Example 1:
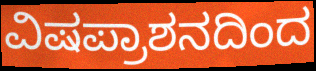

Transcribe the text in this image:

ವಿಷಪ್ರಾಶನದಿಂದ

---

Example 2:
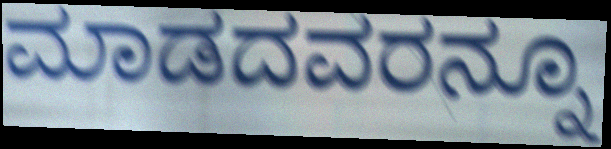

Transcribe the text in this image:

ಮಾಡದವರನ್ನೂ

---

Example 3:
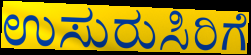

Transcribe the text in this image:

ಉಸುರುಸಿರಿಗೆ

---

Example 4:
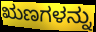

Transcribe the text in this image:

ಋಣಗಳನ್ನು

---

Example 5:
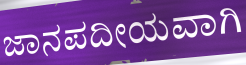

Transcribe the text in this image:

ಜಾನಪದೀಯವಾಗಿ